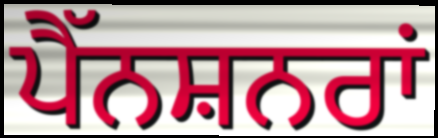
ਪੈੱਨਸ਼ਨਰਾਂ